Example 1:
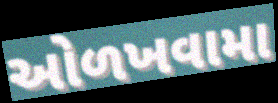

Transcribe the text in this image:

ઓળખવામા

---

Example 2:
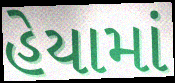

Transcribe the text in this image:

હેયામાં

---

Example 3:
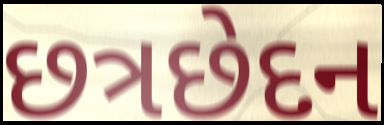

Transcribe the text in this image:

છત્રછેદન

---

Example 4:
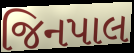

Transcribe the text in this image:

જિનપાલ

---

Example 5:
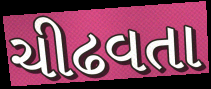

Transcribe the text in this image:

ચીઢવતા